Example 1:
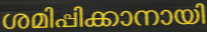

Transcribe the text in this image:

ശമിപ്പിക്കാനായി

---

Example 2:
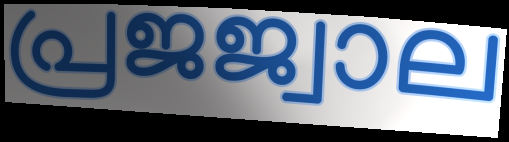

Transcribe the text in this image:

പ്രജജ്വാല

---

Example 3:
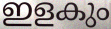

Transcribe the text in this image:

ഇളകും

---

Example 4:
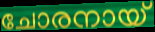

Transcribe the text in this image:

ചോരനായ്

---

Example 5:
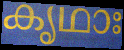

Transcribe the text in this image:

കൃഥാഃ